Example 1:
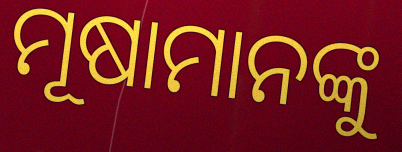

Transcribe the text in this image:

ମୂଷାମାନଙ୍କୁ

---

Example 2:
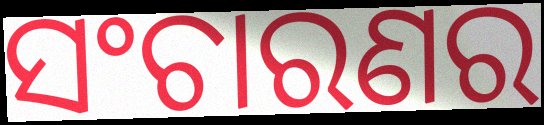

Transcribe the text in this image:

ସଂଚାରଣର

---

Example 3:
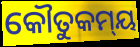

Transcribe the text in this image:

କୌତୁକମ୍‍ୟ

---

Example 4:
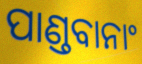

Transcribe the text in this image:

ପାଣ୍ଡବାନାଂ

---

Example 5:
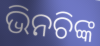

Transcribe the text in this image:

ଭିନଚିଙ୍କ